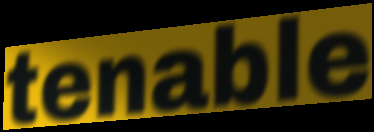
tenable